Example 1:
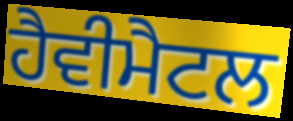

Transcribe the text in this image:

ਹੈਵੀਮੈਟਲ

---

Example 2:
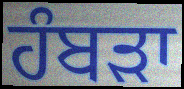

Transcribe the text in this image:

ਹੰਬੜਾ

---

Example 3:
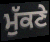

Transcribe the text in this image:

ਮੁੱਕਣੇ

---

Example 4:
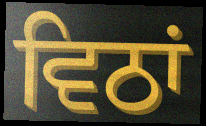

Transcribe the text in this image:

ਵਿਠਾਂ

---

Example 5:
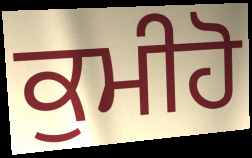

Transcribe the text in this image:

ਕੁਮੀਹੋ